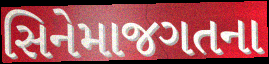
સિનેમાજગતના